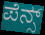
ಪೆನ್ಸ್